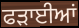
ਫੜਾਈਆਂ